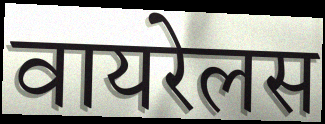
वायरेलस